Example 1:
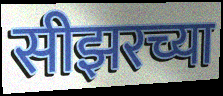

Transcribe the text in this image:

सीझरच्या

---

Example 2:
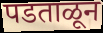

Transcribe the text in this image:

पडताळून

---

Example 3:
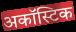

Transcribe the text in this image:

अकॉस्टिक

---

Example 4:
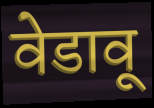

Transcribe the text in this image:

वेडावू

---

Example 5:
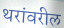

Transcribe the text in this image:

थरांवरील